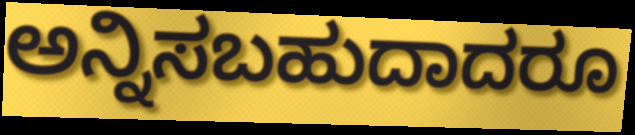
ಅನ್ನಿಸಬಹುದಾದರೂ